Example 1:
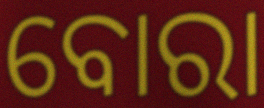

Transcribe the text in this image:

ବୋରା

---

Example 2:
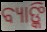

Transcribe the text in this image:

ବ୍ୟାଙ୍କି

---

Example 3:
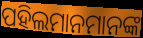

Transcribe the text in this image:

ପହିଲମାନମାନଙ୍କ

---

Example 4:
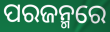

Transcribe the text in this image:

ପରଜନ୍ମରେ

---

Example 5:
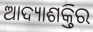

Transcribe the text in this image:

ଆଦ୍ୟାଶକ୍ତିର